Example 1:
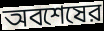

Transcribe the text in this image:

অবশেষের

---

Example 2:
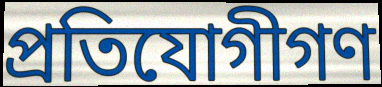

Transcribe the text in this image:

প্রতিযোগীগণ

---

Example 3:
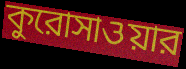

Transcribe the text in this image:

কুরোসাওয়ার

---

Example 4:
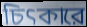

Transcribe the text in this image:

চিৎকারে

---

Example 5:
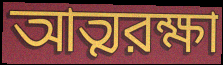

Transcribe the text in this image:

আত্মরক্ষা